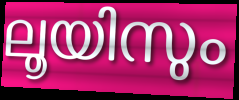
ലൂയിസും